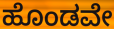
ಹೊಂಡವೇ